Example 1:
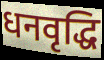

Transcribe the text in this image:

धनवृद्धि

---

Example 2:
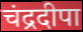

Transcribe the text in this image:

चंद्रदीपा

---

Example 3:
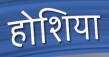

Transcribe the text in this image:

होशिया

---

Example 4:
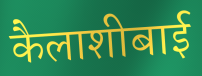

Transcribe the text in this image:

कैलाशीबाई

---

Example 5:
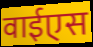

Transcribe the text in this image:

वाईएस